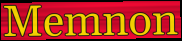
Memnon